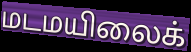
மடமயிலைக்